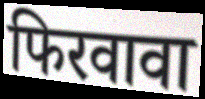
फिरवावा